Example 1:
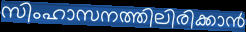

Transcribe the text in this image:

സിംഹാസനത്തിലിരിക്കാൻ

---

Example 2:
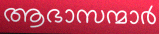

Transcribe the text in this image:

ആഭാസന്മാർ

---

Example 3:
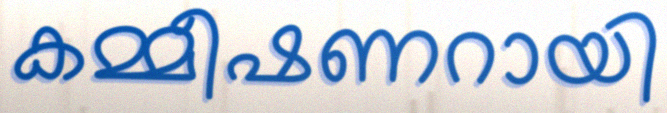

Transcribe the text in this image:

കമ്മീഷണറായി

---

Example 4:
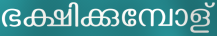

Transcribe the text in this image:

ഭക്ഷിക്കുമ്പോള്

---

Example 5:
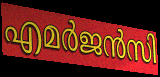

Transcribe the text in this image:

എമർജൻസി